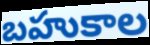
బహుకాల